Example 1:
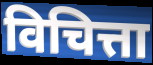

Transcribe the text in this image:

विचित्ता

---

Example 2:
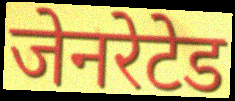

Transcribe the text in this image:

जेनरेटेड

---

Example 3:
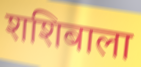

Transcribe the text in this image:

शशिबाला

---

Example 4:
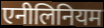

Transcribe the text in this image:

एनीलिनियम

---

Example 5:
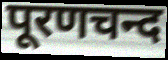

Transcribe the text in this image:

पूरणचन्द